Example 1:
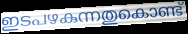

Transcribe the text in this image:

ഇടപഴകുന്നതുകൊണ്ട്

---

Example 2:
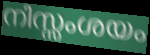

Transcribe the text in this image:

നിസ്സംശയം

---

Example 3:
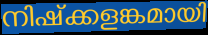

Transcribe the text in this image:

നിഷ്ക്കളങ്കമായി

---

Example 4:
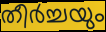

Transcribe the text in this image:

തീർച്ചയും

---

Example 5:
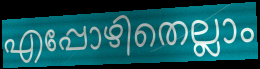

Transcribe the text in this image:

എപ്പോഴിതെല്ലാം